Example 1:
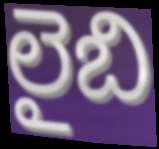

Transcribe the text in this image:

లైబి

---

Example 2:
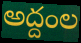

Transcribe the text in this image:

అద్దంల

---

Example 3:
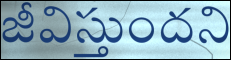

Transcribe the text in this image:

జీవిస్తుందని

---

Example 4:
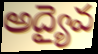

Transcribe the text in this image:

అద్యైవ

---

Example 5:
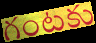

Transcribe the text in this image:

గంటకు